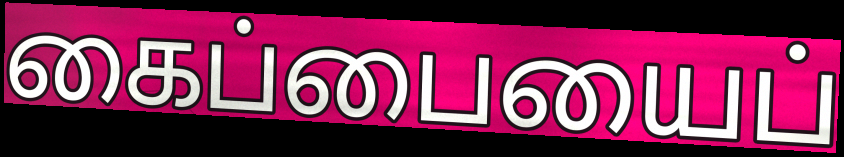
கைப்பையைப்